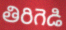
తిరిగెడి